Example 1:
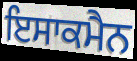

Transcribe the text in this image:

ਇਸਾਕਮੈਨ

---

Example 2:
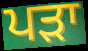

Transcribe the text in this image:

ਪੜਾ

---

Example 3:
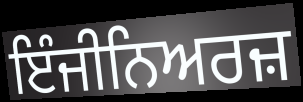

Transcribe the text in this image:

ਇੰਜੀਨਿਅਰਜ਼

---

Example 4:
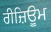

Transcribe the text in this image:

ਰੀਜ਼ਿਊਮ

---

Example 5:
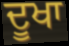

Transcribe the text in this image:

ਦੂਖਾ